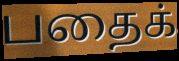
பதைக்